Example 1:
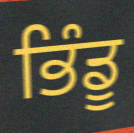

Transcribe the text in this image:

ਭਿੰਡੂ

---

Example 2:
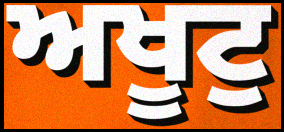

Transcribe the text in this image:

ਅਖੂਟੁ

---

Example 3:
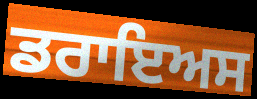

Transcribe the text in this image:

ਡਰਾਇਅਸ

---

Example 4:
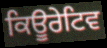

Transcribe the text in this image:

ਕਿਊਰੇਟਿਵ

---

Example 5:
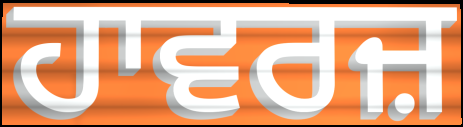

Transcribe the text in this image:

ਹਾਵਰਜ਼